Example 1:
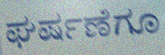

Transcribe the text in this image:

ಘರ್ಷಣೆಗೂ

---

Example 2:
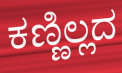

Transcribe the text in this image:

ಕಣ್ಣಿಲ್ಲದ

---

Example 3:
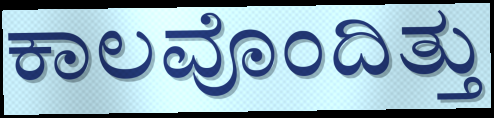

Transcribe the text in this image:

ಕಾಲವೊಂದಿತ್ತು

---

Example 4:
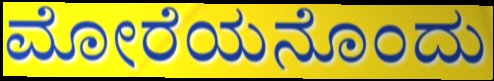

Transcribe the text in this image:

ಮೋರೆಯನೊಂದು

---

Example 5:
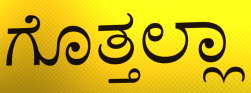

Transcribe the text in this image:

ಗೊತ್ತಲ್ಲಾ